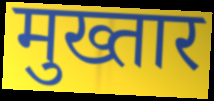
मुख्तार